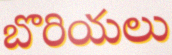
బొరియలు